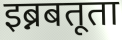
इब्नबतूता